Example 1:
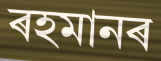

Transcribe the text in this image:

ৰহমানৰ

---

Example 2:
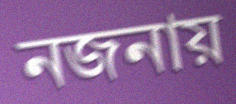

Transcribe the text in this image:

নজনায়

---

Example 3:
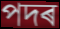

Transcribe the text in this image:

পদৰ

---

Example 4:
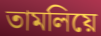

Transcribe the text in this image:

তামলিয়ে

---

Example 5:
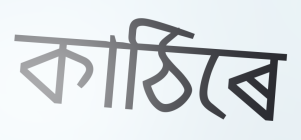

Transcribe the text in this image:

কাঠিৰে